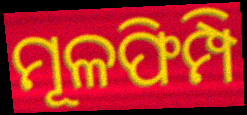
ମୂଳଫିମ୍ପି